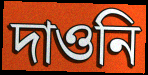
দাওনি